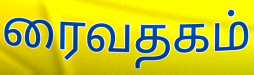
ரைவதகம்